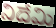
నిదేమి